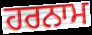
ਹਰਨਾਮ